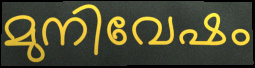
മുനിവേഷം